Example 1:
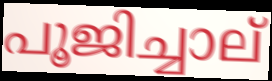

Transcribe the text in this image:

പൂജിച്ചാല്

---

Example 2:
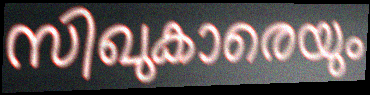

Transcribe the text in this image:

സിഖുകാരെയും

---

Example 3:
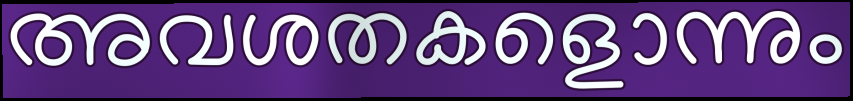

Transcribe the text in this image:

അവശതകളൊന്നും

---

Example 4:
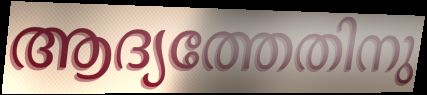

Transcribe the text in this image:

ആദ്യത്തേതിനു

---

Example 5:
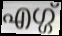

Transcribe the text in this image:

എഗ്ഗ്